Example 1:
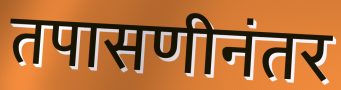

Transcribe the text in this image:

तपासणीनंतर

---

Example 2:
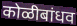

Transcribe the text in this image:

कोळीबांधव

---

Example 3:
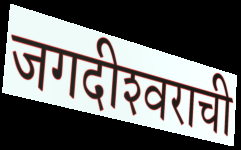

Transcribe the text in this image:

जगदीश्वराची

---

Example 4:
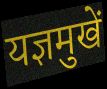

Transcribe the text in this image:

यज्ञमुखें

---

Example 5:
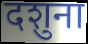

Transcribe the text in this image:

दशुना